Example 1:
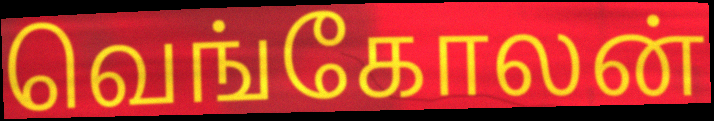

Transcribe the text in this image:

வெங்கோலன்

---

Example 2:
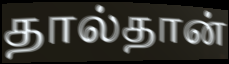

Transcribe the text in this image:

தால்தான்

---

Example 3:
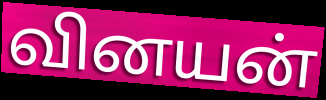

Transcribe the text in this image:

வினயன்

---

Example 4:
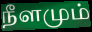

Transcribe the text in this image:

நீளமும்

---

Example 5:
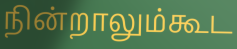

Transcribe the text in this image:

நின்றாலும்கூட